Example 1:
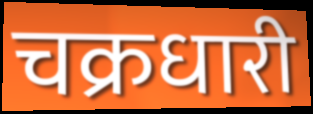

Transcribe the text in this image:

चक्रधारी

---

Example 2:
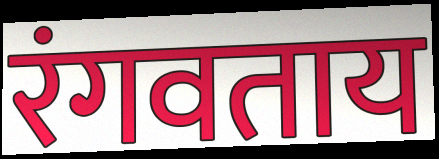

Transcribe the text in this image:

रंगवताय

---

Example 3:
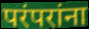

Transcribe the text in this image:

परंपरांना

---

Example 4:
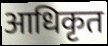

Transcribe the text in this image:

आधिकृत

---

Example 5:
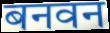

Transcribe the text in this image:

बनवन